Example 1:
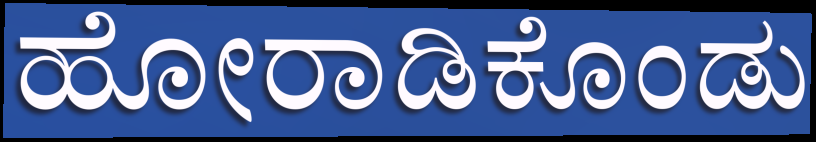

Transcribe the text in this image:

ಹೋರಾಡಿಕೊಂಡು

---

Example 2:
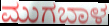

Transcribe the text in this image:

ಮುಗಬಾಳ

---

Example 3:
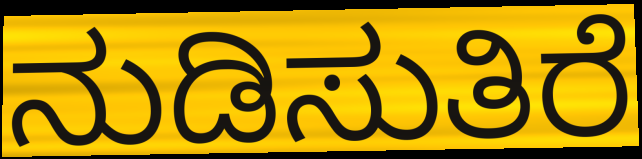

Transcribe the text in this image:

ನುಡಿಸುತಿರೆ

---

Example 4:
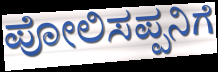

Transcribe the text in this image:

ಪೋಲಿಸಪ್ಪನಿಗೆ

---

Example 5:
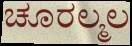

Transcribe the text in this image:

ಚೂರಲ್ಮಲ